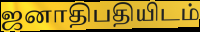
ஜனாதிபதியிடம்